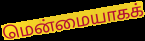
மென்மையாகக்